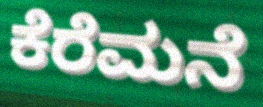
ಕೆರೆಮನೆ